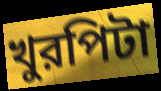
খুরপিটা